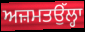
ਅਜ਼ਮਤਉੱਲ੍ਹਾ